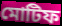
মোটিফ